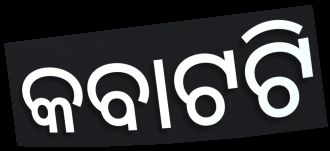
କବାଟଟି